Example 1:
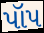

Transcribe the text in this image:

પૉપ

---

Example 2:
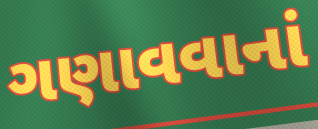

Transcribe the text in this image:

ગણાવવાનાં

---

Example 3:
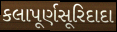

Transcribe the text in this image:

કલાપૂર્ણસૂરિદાદા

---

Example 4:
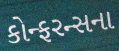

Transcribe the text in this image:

કોન્ફરન્સના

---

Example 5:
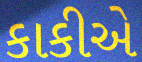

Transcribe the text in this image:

કાકીએ